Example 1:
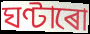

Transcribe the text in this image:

ঘণ্টাৰো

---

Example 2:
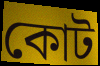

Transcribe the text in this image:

কোট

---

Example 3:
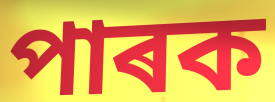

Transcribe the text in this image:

পাৰক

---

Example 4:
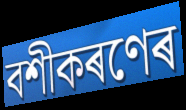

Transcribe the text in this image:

বশীকৰণেৰ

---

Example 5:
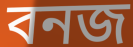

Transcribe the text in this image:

বনজ